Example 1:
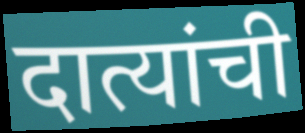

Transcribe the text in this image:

दात्यांची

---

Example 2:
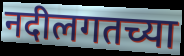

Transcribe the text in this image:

नदीलगतच्या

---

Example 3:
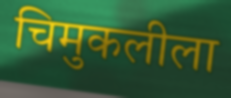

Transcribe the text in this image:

चिमुकलीला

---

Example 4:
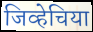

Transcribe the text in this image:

जिव्हेचिया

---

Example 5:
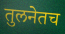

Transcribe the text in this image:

तुलनेतच